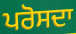
ਪਰੋਸਦਾ